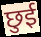
छुई